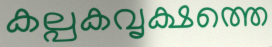
കല്പകവൃക്ഷത്തെ